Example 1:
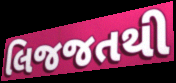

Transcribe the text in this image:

લિજજતથી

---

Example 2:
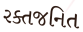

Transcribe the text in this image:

રક્તજનિત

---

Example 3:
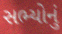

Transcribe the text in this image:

સભ્યોનું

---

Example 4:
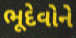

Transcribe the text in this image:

ભૂદેવોને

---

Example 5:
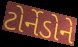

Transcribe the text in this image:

ટોર્નેડોને